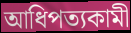
আধিপত্যকামী